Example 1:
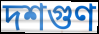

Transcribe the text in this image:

দশগুণ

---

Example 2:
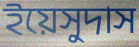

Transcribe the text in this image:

ইয়েসুদাস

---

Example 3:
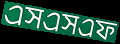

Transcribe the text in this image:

এসএসএফ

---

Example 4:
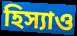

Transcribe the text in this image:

হিস্যাও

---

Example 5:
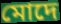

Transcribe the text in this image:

মোদে